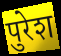
पुरेश